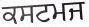
ਕਸਟਮਜ